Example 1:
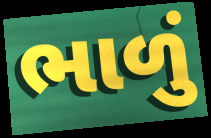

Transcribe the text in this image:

ભાળું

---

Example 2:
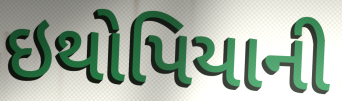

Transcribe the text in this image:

ઇથોપિયાની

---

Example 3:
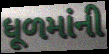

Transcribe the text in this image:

ધૂળમાંની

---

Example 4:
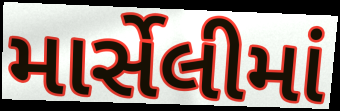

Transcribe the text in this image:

માર્સેલીમાં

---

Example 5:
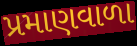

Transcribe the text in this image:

પ્રમાણવાળા